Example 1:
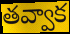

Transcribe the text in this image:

తవ్వాక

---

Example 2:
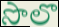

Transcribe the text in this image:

సొలొ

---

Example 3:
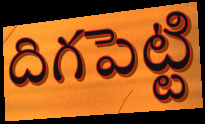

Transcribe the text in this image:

దిగపెట్టి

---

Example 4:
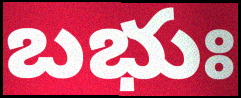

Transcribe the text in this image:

బభుః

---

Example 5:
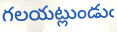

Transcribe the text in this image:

గలయట్లుండుఁ